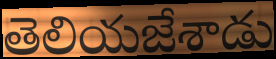
తెలియజేశాడు